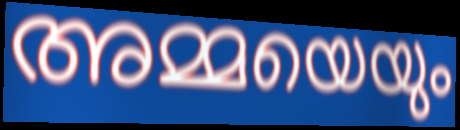
അമ്മയെയും